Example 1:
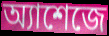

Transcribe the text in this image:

অ্যাশেজে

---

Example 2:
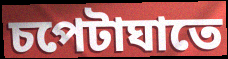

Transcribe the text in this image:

চপেটাঘাতে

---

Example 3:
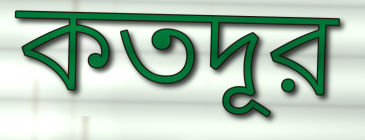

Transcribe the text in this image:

কতদূর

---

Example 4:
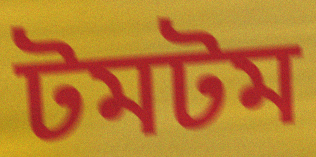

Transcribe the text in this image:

টমটম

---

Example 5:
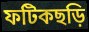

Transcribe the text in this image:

ফটিকছড়ি